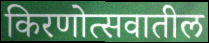
किरणोत्सवातील